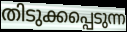
തിടുക്കപ്പെടുന്ന